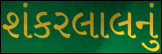
શંકરલાલનું